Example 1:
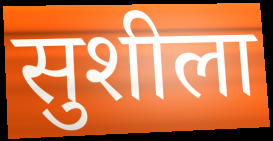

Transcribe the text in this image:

सुशीला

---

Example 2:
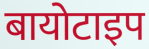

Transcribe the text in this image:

बायोटाइप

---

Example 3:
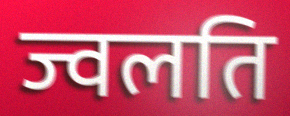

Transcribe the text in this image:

ज्वलति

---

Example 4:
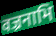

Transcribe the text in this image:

वज्रनाभि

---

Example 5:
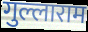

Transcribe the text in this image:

गुल्लाराम